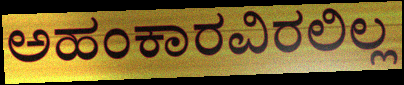
ಅಹಂಕಾರವಿರಲಿಲ್ಲ